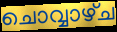
ചൊവ്വാഴ്‌ച